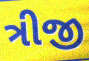
ત્રીજી